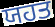
ਯਹਤ